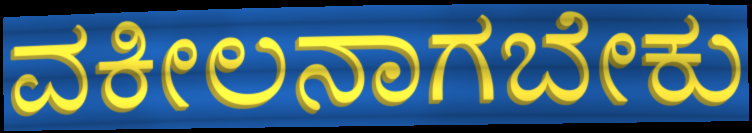
ವಕೀಲನಾಗಬೇಕು